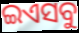
ଇଏସବୁ